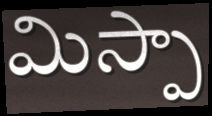
మిస్పా